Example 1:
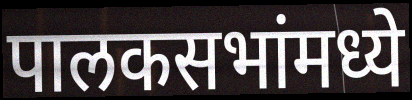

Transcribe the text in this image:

पालकसभांमध्ये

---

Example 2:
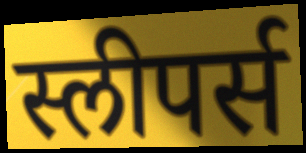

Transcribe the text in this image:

स्लीपर्स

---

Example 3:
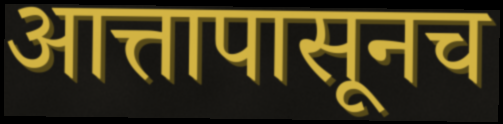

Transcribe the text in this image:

आत्तापासूनच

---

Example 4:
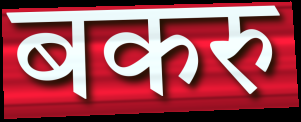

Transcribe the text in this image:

बकरु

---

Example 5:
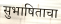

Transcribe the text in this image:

सुभाषिताचा